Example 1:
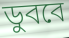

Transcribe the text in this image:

ডুববে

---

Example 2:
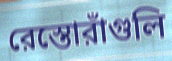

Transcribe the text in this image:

রেস্তোরাঁগুলি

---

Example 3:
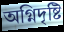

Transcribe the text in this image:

অগ্নিদৃষ্টি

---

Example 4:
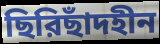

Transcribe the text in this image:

ছিরিছাঁদহীন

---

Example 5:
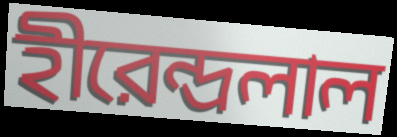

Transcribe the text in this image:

হীরেন্দ্রলাল